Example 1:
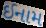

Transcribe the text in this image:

ઈનામ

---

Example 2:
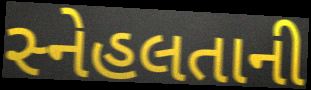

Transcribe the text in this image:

સ્નેહલતાની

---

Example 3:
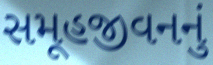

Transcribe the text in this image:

સમૂહજીવનનું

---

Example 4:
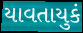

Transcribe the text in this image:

યાવતાયુકં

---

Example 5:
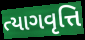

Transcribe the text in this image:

ત્યાગવૃત્તિ